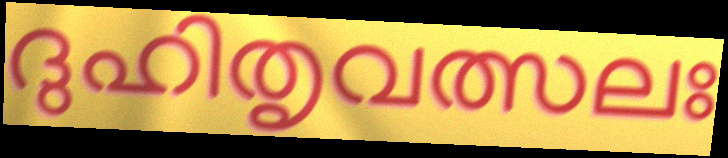
ദുഹിതൃവത്സലഃ